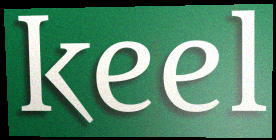
keel